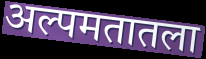
अल्पमतातला